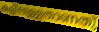
കളിലുള്ളതാണതു്